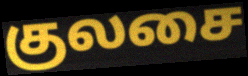
குலசை